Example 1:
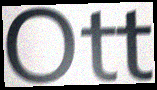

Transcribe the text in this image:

Ott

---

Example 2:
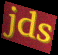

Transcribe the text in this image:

jds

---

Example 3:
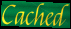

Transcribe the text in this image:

Cached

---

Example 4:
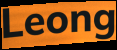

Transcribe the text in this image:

Leong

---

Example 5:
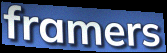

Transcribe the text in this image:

framers